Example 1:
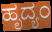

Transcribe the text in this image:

ಹೃದ್ಯಂ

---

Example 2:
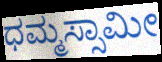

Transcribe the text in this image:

ಧಮ್ಮಸ್ಸಾಮೀ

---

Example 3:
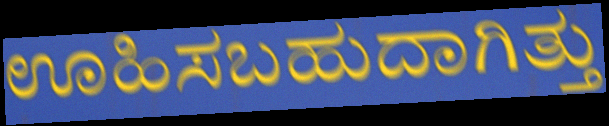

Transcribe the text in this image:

ಊಹಿಸಬಹುದಾಗಿತ್ತು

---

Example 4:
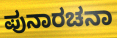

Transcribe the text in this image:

ಪುನಾರಚನಾ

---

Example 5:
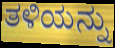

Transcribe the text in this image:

ತಳಿಯನ್ನು